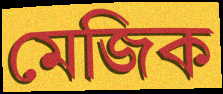
মেজিক